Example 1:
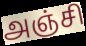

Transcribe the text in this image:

அஞ்சி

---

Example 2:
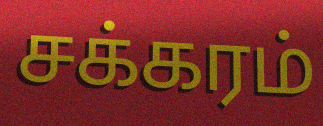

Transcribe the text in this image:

சக்கரம்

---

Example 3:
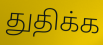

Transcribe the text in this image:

துதிக்க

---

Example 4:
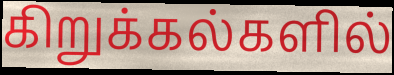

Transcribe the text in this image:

கிறுக்கல்களில்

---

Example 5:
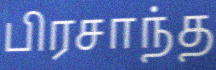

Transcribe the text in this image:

பிரசாந்த